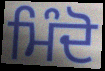
ਮਿੰਦੋ